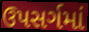
ઉપસર્ગમાં